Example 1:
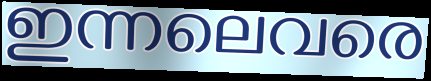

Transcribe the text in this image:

ഇന്നലെവരെ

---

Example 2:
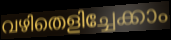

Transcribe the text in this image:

വഴിതെളിച്ചേക്കാം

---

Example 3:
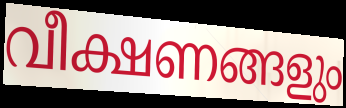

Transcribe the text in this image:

വീക്ഷണങ്ങളും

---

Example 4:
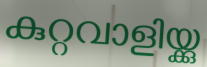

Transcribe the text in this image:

കുറ്റവാളിയ്ക്കു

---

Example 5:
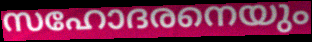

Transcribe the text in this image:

സഹോദരനെയും